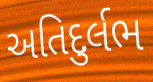
અતિદુર્લભ